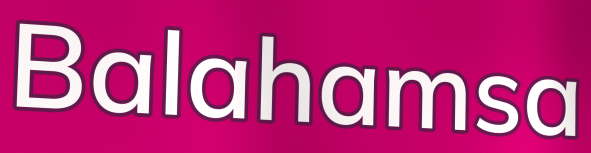
Balahamsa